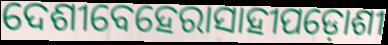
ଦେଶୀବେହେରାସାହୀପଡ଼ୋଶୀ